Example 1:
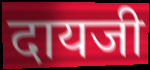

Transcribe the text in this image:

दायजी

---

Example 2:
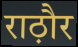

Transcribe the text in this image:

राठ़ौर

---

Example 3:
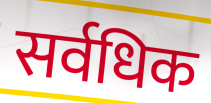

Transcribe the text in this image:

सर्वधिक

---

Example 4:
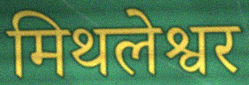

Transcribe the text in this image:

मिथलेश्वर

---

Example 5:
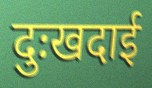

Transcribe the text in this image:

दुःखदाई